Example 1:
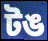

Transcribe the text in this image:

টঙ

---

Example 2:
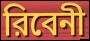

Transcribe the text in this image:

রিবেনী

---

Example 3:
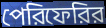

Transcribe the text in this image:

পেরিফেরির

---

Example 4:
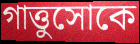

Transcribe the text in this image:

গাত্তুসোকে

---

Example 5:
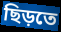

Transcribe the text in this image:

ছিড়তে